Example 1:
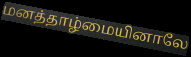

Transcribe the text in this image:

மனத்தாழ்மையினாலே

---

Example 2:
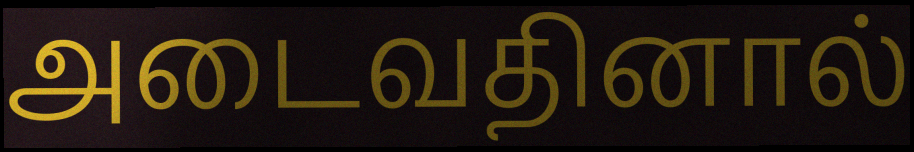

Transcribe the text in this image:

அடைவதினால்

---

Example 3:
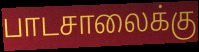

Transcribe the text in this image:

பாடசாலைக்கு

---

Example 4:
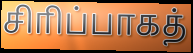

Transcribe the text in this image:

சிரிப்பாகத்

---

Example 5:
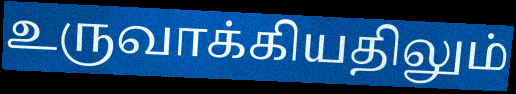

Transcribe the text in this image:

உருவாக்கியதிலும்